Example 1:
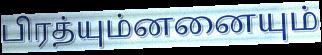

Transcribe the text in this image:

பிரத்யும்னனையும்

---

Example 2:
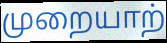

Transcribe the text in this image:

முறையாற்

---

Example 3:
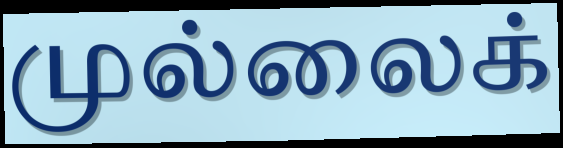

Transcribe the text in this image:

முல்லைக்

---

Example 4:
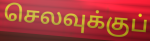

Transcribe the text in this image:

செலவுக்குப்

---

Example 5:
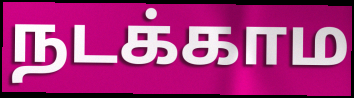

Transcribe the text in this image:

நடக்காம